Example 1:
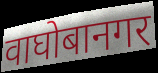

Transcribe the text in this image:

वाघोबानगर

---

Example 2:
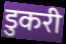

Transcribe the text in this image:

डुकरी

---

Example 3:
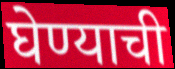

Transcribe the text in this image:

घेण्याची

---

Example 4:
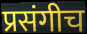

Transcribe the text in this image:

प्रसंगीच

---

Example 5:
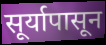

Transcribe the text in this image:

सूर्यापासून